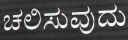
ಚಲಿಸುವುದು